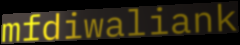
mfdiwaliank